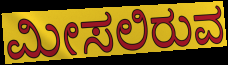
ಮೀಸಲಿರುವ